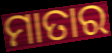
ମାତାର